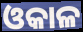
ଓକାଳ